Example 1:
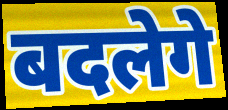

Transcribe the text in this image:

बदलेगे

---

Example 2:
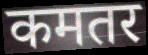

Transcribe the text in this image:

कमतर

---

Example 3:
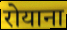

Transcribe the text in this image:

रोयाना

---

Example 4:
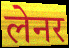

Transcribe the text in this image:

लेनर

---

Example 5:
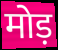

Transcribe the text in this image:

मोड़